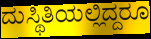
ದುಸ್ಥಿತಿಯಲ್ಲಿದ್ದರೂ